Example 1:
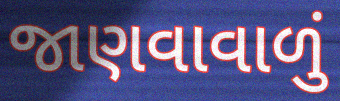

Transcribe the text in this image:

જાણવાવાળું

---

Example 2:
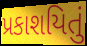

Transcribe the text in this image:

પ્રકાશયિતું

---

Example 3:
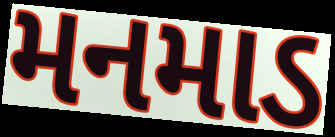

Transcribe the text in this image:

મનમાડ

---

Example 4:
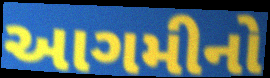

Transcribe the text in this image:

આગમીનો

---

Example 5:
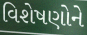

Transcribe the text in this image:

વિશેષણોને